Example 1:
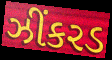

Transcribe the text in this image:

ઝીંકરડ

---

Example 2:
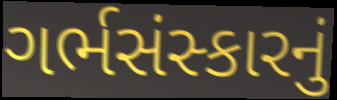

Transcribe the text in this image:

ગર્ભસંસ્કારનું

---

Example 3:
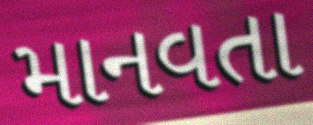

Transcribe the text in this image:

માનવતા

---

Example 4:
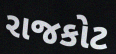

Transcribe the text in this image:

રાજકોટ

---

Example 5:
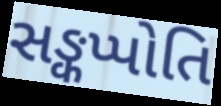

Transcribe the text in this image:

સઙ્કપ્પોતિ